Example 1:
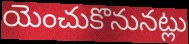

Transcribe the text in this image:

యెంచుకొనునట్లు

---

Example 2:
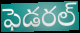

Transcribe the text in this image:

ఫెడరల్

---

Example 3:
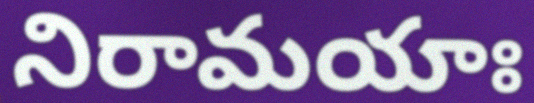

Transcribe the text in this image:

నిరామయాః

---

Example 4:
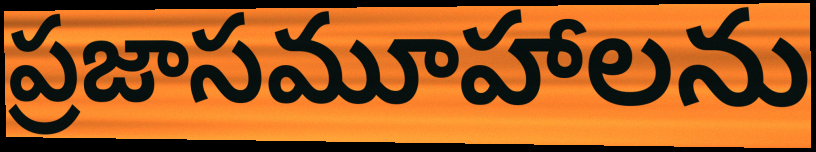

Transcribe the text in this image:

ప్రజాసమూహాలను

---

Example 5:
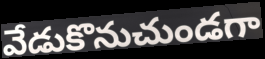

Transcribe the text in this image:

వేడుకొనుచుండగా